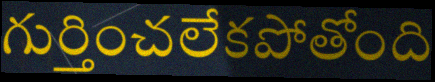
గుర్తించలేకపోతోంది